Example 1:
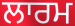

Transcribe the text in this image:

ਲਾਰਮ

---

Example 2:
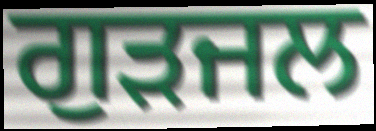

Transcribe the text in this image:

ਗੁੜਜਲ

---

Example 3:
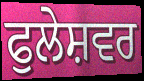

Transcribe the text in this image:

ਫੁਲੇਸ਼ਵਰ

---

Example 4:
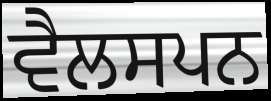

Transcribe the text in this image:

ਵੈਲਸਪਨ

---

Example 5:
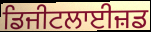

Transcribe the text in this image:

ਡਿਜੀਟਲਾਈਜ਼ਡ